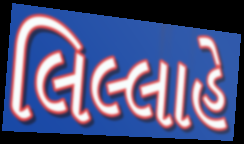
લિલ્લાહે